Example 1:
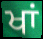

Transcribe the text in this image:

ਖਾਂ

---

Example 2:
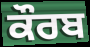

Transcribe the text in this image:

ਕੌਰਬ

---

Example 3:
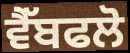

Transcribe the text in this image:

ਵੈੱਬਫਲੋ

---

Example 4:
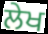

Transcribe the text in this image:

ਲੇਖ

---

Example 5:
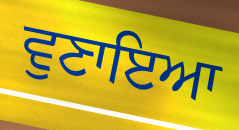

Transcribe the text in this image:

ਵੁਣਾਇਆ